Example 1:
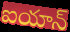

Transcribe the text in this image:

ఐయాన్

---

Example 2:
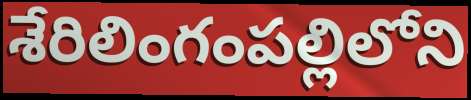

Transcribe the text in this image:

శేరిలింగంపల్లిలోని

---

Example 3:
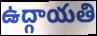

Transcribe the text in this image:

ఉద్గాయతి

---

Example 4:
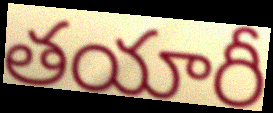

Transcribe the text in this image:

తయారీ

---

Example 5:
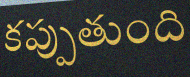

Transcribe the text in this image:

కప్పుతుంది